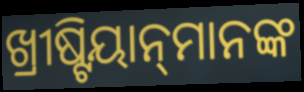
ଖ୍ରୀଷ୍ଟିୟାନ୍‌ମାନଙ୍କ